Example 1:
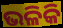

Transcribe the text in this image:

ଭଳିକି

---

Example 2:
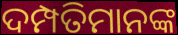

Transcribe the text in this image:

ଦମ୍ପତିମାନଙ୍କ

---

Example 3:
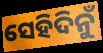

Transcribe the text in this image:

ସେହିଦିନୁଁ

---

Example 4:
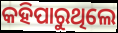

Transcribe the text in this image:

କହିପାରୁଥିଲେ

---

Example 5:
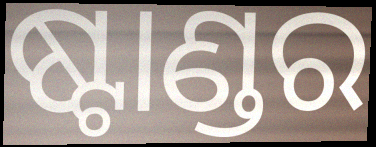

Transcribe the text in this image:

ଷ୍ଟାଣ୍ଡର